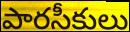
పారసీకులు